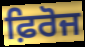
ਫ਼ਿਰੋਜ